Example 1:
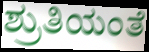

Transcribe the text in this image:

ಶ್ರುತಿಯಂತೆ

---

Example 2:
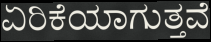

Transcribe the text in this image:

ಏರಿಕೆಯಾಗುತ್ತವೆ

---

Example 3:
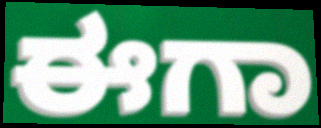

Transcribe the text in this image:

ಈಗಾ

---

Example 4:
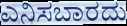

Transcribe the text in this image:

ಎನಿಸಬಾರದು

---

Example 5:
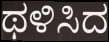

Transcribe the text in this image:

ಥಳಿಸಿದ